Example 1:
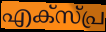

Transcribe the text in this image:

എക്സ്പ്ര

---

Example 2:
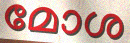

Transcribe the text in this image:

മോശ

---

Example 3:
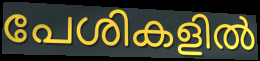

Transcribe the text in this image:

പേശികളിൽ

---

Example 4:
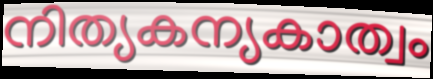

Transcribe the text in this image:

നിത്യകന്യകാത്വം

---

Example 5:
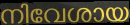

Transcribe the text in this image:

നിവേശായ